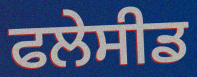
ਫਲੇਸੀਡ